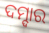
ଦମ୍ଦାର